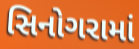
સિનોગરામાં